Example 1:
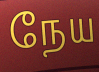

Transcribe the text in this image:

நேய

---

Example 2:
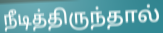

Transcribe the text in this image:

நீடித்திருந்தால்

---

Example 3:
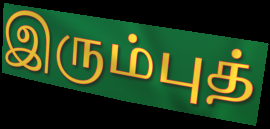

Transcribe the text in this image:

இரும்புத்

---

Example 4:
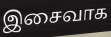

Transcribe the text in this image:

இசைவாக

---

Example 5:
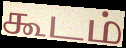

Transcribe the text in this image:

கூடம்